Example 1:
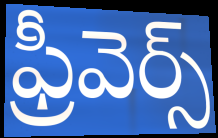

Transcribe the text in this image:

ఫ్రీవెర్స్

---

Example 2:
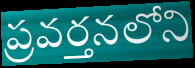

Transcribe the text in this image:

ప్రవర్తనలోని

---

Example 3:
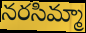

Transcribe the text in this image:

నరసిమ్మా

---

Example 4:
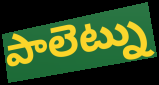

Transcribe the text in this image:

పాలెట్ను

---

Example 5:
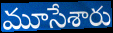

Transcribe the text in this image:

మూసేశారు